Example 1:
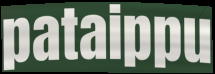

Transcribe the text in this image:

pataippu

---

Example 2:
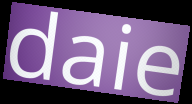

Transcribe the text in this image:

daie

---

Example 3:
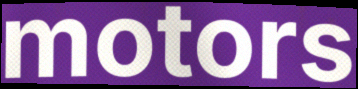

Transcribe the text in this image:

motors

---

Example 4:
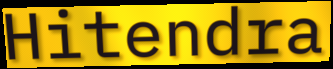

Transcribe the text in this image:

Hitendra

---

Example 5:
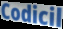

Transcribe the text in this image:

Codicil